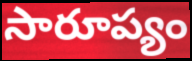
సారూప్యం